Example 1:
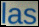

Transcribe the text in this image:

las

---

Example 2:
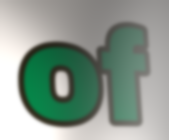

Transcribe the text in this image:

of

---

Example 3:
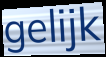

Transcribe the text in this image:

gelijk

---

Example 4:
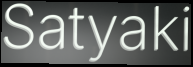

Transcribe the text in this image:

Satyaki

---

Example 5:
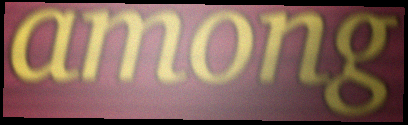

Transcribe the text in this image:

among